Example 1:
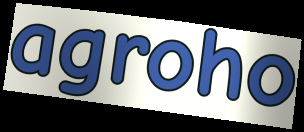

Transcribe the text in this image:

agroho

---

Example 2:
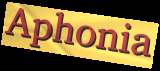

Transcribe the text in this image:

Aphonia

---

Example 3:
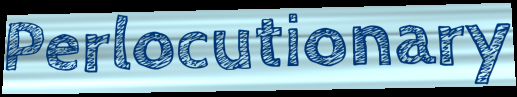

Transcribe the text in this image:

Perlocutionary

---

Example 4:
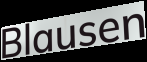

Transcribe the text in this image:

Blausen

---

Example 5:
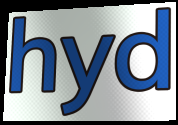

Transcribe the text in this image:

hyd